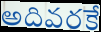
అదివరకే